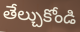
తేల్చుకోండి